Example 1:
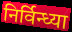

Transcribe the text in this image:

निर्विन्ध्या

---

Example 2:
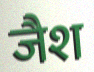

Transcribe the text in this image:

जैश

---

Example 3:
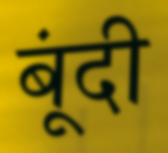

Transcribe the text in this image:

बूंदी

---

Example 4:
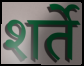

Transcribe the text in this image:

शर्ते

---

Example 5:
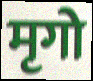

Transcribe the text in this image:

मृगो